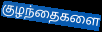
குழந்தைகளை